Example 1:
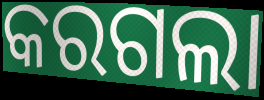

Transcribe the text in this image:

କରଗଲା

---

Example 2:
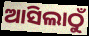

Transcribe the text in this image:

ଆସିଲାଠୁଁ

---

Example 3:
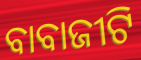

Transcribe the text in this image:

ବାବାଜୀଟି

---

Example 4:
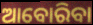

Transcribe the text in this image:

ଆବୋରିବା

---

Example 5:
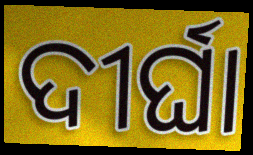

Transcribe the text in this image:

ଦୀର୍ଘା